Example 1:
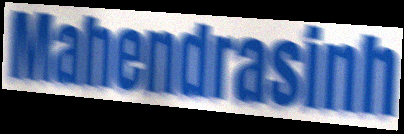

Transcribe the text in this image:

Mahendrasinh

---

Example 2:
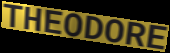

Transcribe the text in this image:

THEODORE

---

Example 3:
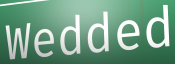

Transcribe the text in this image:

Wedded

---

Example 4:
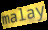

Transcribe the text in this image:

malay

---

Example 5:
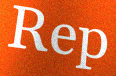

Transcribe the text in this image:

Rep